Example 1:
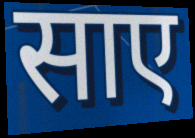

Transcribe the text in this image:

साए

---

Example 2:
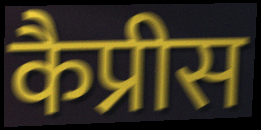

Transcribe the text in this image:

कैप्रीस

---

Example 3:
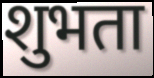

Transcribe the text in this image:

शुभता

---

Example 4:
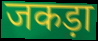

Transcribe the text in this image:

जकड़ा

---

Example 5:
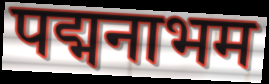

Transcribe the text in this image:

पद्मनाभम